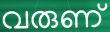
വരുണ്